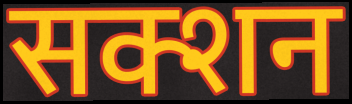
सक्शन